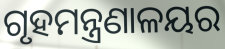
ଗୃହମନ୍ତ୍ରଣାଳୟର